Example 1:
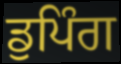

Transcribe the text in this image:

ਡੁਪਿੰਗ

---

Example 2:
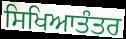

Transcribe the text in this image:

ਸਿਖਿਆਤੰਤਰ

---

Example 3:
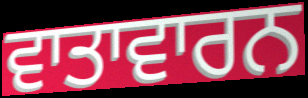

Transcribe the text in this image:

ਵਾਤਾਵਾਰਨ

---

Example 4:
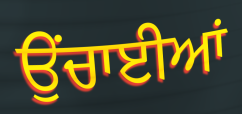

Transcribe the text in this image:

ਉਂਚਾਈਆਂ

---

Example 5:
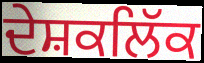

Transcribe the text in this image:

ਦੇਸ਼ਕਲਿੱਕ